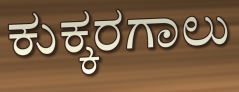
ಕುಕ್ಕರಗಾಲು